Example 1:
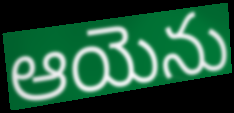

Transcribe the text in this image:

ఆయెను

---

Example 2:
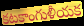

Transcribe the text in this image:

కటకాంగుళీయక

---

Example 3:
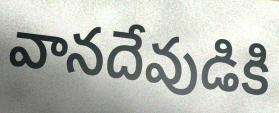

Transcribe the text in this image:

వానదేవుడికి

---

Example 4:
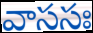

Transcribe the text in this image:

వాససః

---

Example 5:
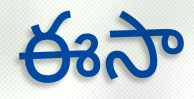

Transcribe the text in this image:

ఈసా